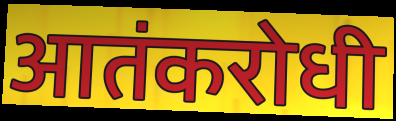
आतंकरोधी